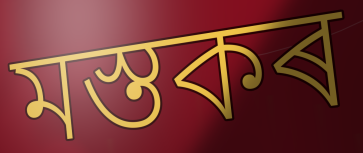
মস্তকৰ